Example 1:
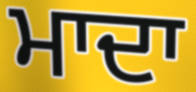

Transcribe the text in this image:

ਮਾਦਾ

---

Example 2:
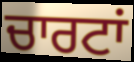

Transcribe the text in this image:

ਚਾਰਟਾਂ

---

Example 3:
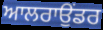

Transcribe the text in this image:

ਆਲਰਾਉਂਡਰ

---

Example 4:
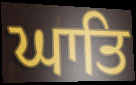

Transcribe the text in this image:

ਘਾਤਿ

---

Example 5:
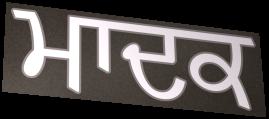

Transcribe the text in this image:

ਮਾਦਕ